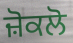
ਜ਼ੋਕਲੋ